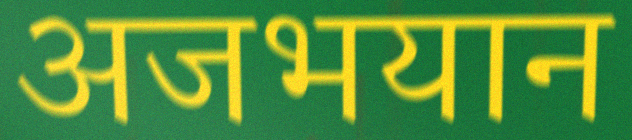
अजभयान